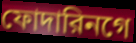
ফোদারিনগে